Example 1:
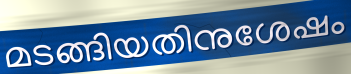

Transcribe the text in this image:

മടങ്ങിയതിനുശേഷം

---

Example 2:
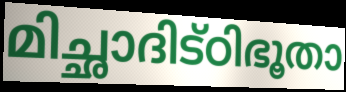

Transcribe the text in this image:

മിച്ഛാദിട്ഠിഭൂതാ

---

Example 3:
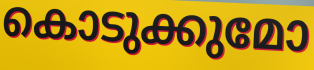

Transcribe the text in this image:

കൊടുക്കുമോ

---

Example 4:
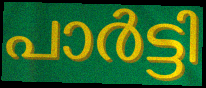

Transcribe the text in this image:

പാർട്ടി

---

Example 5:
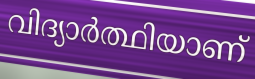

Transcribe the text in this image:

വിദ്യാർത്ഥിയാണ്